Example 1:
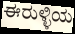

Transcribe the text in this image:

ಈರುಳ್ಳಿಯ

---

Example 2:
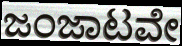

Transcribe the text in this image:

ಜಂಜಾಟವೇ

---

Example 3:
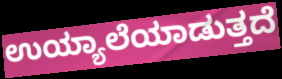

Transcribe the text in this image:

ಉಯ್ಯಾಲೆಯಾಡುತ್ತದೆ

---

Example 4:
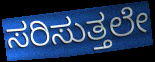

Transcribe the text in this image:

ಸರಿಸುತ್ತಲೇ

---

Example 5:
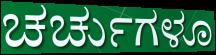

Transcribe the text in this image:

ಚರ್ಚುಗಳೂ